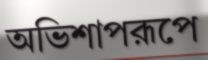
অভিশাপরূপে